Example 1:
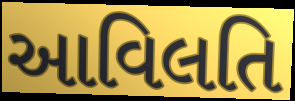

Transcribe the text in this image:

આવિલતિ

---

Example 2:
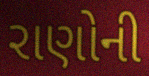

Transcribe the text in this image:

રાણોની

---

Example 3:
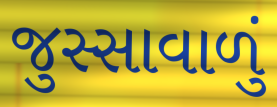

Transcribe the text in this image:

જુસ્સાવાળું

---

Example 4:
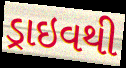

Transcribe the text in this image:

ડ્રાઇવથી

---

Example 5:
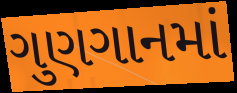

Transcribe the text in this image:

ગુણગાનમાં